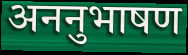
अननुभाषण